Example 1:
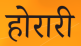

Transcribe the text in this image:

होरारी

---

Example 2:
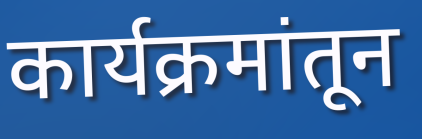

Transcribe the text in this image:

कार्यक्रमांतून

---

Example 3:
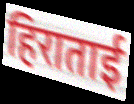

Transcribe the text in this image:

हिराताई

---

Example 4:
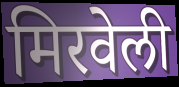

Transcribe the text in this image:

मिरवेली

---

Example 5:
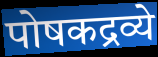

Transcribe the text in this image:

पोषकद्रव्ये